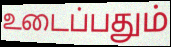
உடைப்பதும்